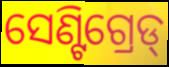
ସେଣ୍ଟିଗ୍ରେଡ୍